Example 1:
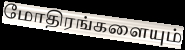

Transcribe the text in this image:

மோதிரங்களையும்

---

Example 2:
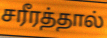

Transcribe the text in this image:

சரீரத்தால்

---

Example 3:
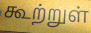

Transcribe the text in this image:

கூற்றுள்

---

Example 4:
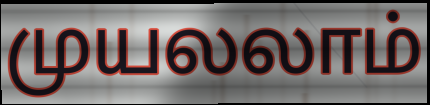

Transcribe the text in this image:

முயலலாம்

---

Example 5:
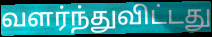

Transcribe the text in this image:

வளர்ந்துவிட்டது